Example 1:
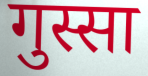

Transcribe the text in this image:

गुस्सा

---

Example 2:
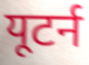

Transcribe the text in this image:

यूटर्न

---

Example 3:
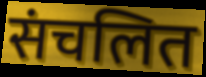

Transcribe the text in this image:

संचलित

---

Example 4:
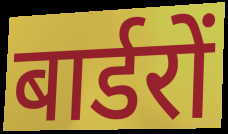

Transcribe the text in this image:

बार्डरों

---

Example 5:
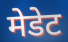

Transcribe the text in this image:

मेडेट